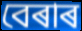
বেৰাৰ